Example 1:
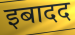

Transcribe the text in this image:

इबादद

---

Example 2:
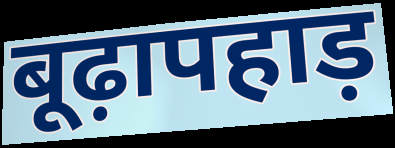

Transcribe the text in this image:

बूढ़ापहाड़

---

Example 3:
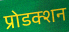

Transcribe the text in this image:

प्रोडक्शन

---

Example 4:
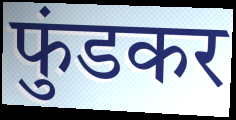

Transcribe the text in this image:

फुंडकर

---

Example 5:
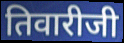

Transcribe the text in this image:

तिवारीजी